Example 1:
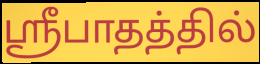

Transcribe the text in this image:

ஸ்ரீபாதத்தில்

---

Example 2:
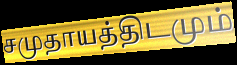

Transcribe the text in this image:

சமுதாயத்திடமும்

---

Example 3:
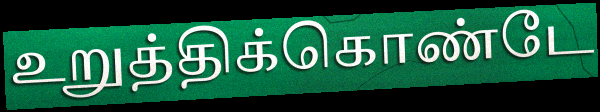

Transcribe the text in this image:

உறுத்திக்கொண்டே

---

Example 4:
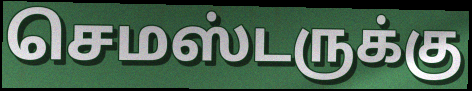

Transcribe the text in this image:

செமஸ்டருக்கு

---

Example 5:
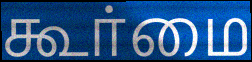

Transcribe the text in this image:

கூர்மை